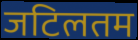
जटिलतम